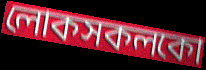
লোকসকলকো